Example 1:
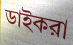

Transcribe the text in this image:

ডাইকরা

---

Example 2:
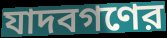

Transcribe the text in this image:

যাদবগণের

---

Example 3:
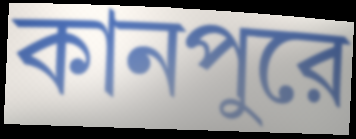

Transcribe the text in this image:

কানপুরে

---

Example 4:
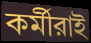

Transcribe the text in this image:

কর্মীরাই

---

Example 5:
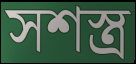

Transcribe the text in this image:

সশস্ত্র